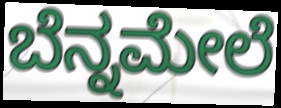
ಬೆನ್ನಮೇಲೆ